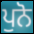
ਪੁਨੋ